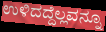
ಉಳಿದದ್ದೆಲ್ಲವನ್ನೂ